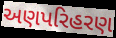
અણપરિહરણ